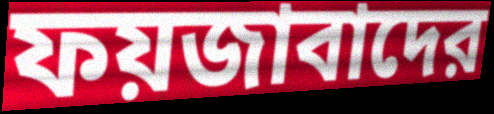
ফয়জাবাদের